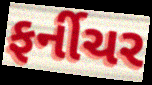
ફર્નીચર